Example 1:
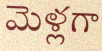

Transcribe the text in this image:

మెళ్లగా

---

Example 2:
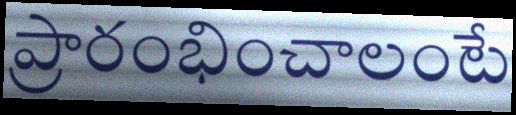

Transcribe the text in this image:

ప్రారంభించాలంటే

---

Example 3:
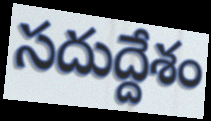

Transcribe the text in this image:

సదుద్దేశం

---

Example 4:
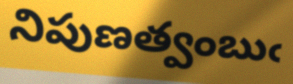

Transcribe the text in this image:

నిపుణత్వంబుఁ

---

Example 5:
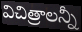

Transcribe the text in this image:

విచిత్రాలన్నీ